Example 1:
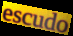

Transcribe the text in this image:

escudo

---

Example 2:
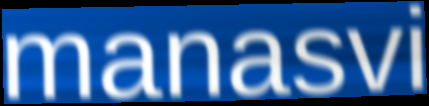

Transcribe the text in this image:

manasvi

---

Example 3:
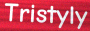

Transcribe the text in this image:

Tristyly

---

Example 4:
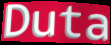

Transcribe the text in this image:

Duta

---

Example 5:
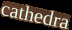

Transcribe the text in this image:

cathedra